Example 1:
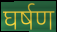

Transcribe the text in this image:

घर्षण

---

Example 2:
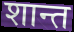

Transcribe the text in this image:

शान्त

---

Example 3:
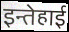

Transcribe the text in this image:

इन्तेहाई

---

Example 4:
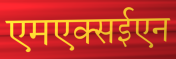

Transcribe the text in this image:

एमएक्सईएन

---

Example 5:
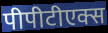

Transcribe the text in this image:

पीपीटीएक्स